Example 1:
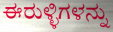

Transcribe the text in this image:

ಈರುಳ್ಳಿಗಳನ್ನು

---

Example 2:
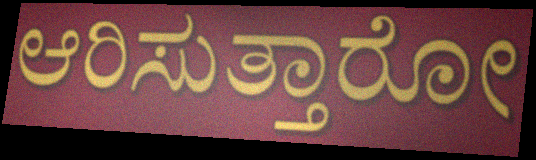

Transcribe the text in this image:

ಆರಿಸುತ್ತಾರೋ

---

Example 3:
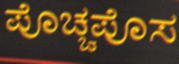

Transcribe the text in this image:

ಪೊಚ್ಚಪೊಸ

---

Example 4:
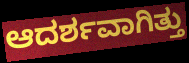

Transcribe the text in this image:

ಆದರ್ಶವಾಗಿತ್ತು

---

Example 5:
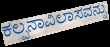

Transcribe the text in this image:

ಕಲ್ಪನಾವಿಲಾಸವನ್ನು